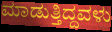
ಮಾಡುತ್ತಿದ್ದವಳು